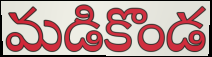
మడికొండ